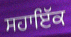
ਸਹਾਇੱਕ